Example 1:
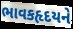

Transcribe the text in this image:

ભાવકહૃદયને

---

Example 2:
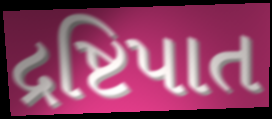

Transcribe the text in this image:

દ્રષ્ટિપાત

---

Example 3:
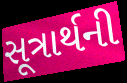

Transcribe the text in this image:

સૂત્રાર્થની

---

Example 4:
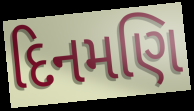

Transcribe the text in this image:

દિનમણિ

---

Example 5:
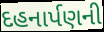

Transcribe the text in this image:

દહનાર્પણની